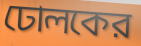
ঢোলকের